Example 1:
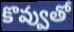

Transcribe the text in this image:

కొవ్వుతో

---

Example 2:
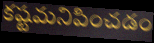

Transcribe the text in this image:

కష్టమనిపించడం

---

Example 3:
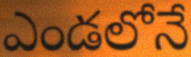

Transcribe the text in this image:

ఎండలోనే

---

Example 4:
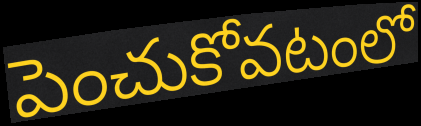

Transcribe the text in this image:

పెంచుకోవటంలో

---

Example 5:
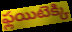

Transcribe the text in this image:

ఫ్లయిటెక్కి